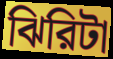
ঝিরিটা